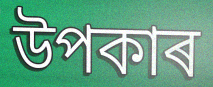
উপকাৰ